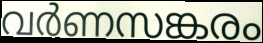
വർണസങ്കരം